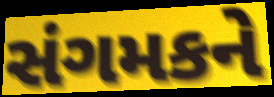
સંગમકને